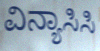
ವಿನ್ಯಾಸಿಸಿ